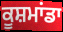
ਕੂਸ਼ਮਾਂਡਾ